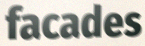
facades